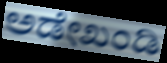
ಅಡೇಖಂಡಿ